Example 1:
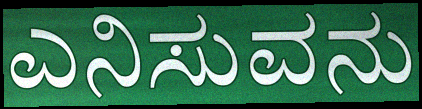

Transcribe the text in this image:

ಎನಿಸುವನು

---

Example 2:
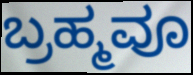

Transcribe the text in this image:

ಬ್ರಹ್ಮವೂ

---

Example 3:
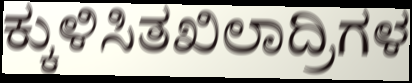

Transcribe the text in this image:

ಕ್ಕುಳಿಸಿತಖಿಲಾದ್ರಿಗಳ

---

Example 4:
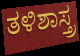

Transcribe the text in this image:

ತಳಿಶಾಸ್ತ್ರ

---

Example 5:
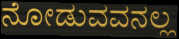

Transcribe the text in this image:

ನೋಡುವವನಲ್ಲ